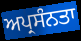
ਅਪ੍ਰਸੰਨਤਾ